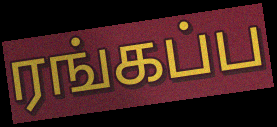
ரங்கப்ப